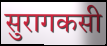
सुरागकसी